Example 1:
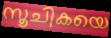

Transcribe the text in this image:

സൂചികയെ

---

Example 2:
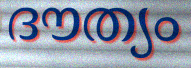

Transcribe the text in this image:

ദൗത്യം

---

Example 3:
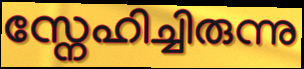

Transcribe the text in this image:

സ്നേഹിച്ചിരുന്നു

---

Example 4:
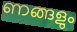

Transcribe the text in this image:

ണങ്ങളും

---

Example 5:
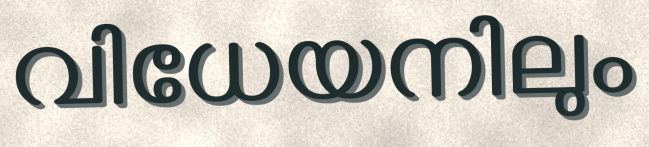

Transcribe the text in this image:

വിധേയനിലും